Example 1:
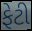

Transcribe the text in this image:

ફેટી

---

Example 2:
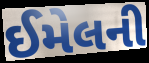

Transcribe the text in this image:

ઈમેલની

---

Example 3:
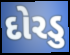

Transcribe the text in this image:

દોરડુ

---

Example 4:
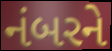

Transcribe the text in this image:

નંબરને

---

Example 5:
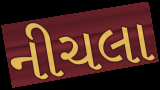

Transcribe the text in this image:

નીચલા